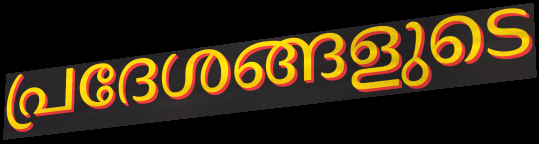
പ്രദേശങ്ങളുടെ